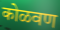
कोळवण